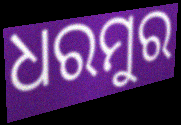
ଧରମୁର